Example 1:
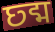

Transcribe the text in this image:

छ्द्म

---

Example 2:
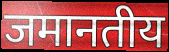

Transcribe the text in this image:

जमानतीय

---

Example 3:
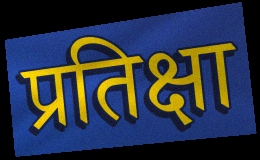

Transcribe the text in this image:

प्रतिक्षा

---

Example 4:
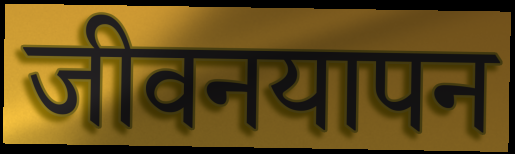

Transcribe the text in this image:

जीवनयापन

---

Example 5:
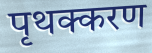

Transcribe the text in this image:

पृथक्करण